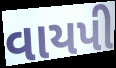
વાયપી